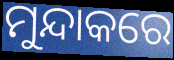
ମୁନ୍ଦାକରେ